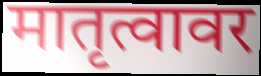
मातृत्वावर